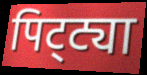
पिट्ट्या